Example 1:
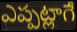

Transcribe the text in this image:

ఎప్పట్లాగే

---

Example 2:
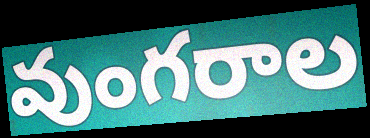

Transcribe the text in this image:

వుంగరాల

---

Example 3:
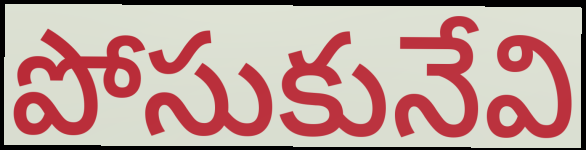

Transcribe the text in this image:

పోసుకునేవి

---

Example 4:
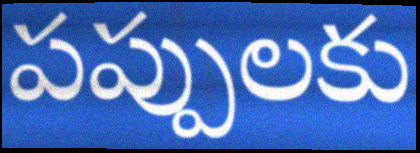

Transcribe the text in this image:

పప్పులకు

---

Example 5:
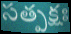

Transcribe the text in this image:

సత్పక్షః